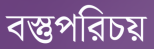
বস্তুপরিচয়